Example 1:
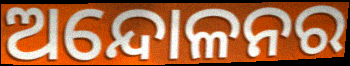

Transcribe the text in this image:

ଅନ୍ଦୋଳନର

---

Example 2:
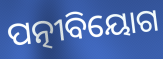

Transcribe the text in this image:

ପତ୍ନୀବିୟୋଗ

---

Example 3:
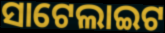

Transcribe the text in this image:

ସାଟେଲାଇଟ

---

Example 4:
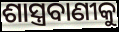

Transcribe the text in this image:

ଶାସ୍ତ୍ରବାଣୀକୁ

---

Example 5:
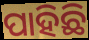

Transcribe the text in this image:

ପାହିଛି